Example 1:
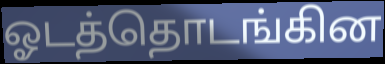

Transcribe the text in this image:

ஓடத்தொடங்கின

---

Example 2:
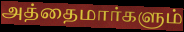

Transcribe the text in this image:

அத்தைமார்களும்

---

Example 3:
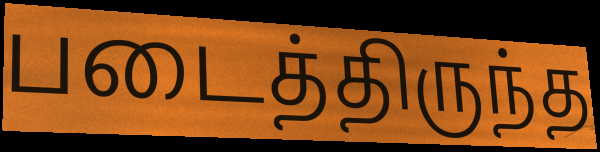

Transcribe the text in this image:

படைத்திருந்த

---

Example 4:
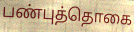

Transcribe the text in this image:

பண்புத்தொகை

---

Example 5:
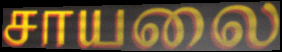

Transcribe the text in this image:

சாயலை